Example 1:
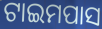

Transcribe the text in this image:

ଟାଇମପାସ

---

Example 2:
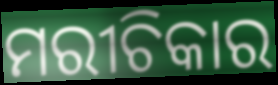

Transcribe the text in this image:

ମରୀଚିକାର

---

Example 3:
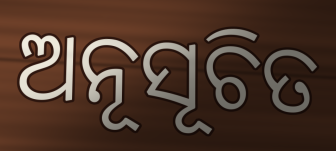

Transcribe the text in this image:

ଅନୂସୂଚିତ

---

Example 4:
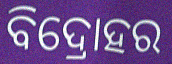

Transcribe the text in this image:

ବିଦ୍ରୋହର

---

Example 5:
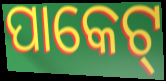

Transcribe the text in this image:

ପାକେଟ୍